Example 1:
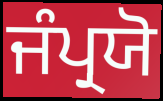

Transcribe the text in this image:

ਜੰਪ੍ਰਯੋ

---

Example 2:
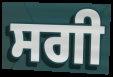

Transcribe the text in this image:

ਸਗੀ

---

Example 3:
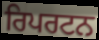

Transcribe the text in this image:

ਰਿਪਰਟਨ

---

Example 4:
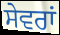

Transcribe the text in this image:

ਸੇਵਰਾਂ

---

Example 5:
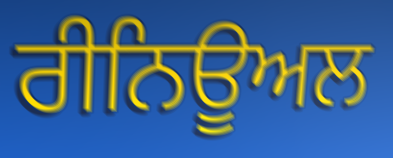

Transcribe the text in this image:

ਰੀਨਿਊਅਲ